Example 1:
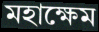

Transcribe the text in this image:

মহাক্ষেম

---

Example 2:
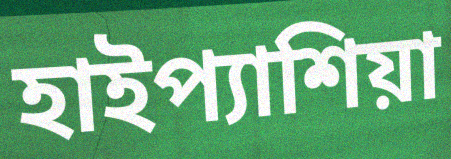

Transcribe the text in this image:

হাইপ্যাশিয়া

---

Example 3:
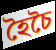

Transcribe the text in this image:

হৈচৈ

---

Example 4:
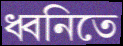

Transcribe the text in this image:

ধ্বনিতে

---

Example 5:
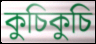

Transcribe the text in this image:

কুচিকুচি